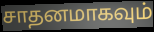
சாதனமாகவும்